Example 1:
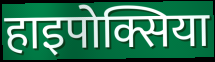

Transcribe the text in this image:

हाइपोक्सिया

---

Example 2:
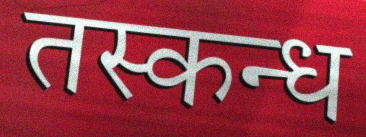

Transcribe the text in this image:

तस्कन्ध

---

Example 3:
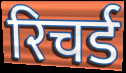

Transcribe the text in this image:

रिचर्ड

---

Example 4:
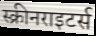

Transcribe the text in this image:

स्क्रीनराइटर्स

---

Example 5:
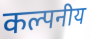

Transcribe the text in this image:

कल्पनीय